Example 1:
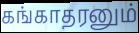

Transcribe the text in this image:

கங்காதரனும்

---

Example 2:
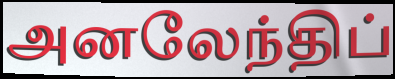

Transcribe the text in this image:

அனலேந்திப்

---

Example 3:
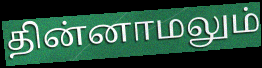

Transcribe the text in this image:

தின்னாமலும்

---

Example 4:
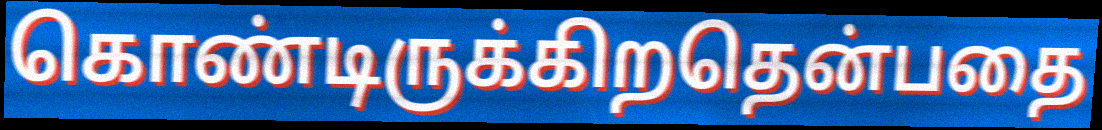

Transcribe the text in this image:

கொண்டிருக்கிறதென்பதை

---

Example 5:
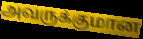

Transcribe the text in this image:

அவருக்குமான